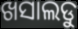
ଖସାଲଡୁ